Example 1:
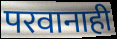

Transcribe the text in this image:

परवानाही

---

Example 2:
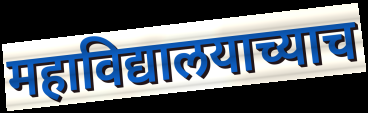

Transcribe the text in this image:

महाविद्यालयाच्याच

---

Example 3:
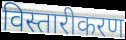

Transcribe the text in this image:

विस्तारीकरण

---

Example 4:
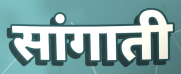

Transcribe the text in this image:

सांगाती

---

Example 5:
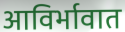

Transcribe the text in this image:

आविर्भावात